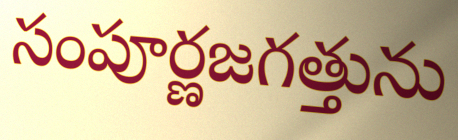
సంపూర్ణజగత్తును